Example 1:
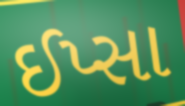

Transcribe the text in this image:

ઈપ્સા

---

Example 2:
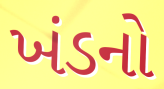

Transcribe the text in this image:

ખંડનો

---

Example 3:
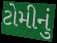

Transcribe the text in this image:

ટોમીનું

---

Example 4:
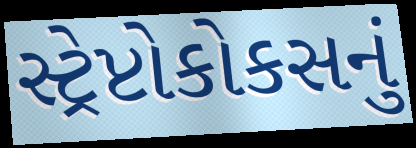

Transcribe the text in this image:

સ્ટ્રેપ્ટોકોકસનું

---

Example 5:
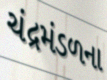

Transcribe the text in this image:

ચંદ્રમંડળના